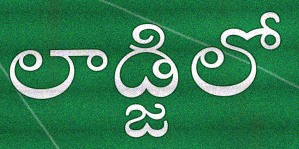
లాడ్జిలో